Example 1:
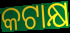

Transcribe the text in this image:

କଟାକ୍ଷ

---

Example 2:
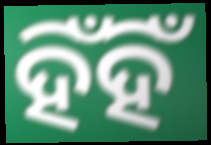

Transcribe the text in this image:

ହିଁହିଁ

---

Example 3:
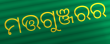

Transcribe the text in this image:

ମତ୍ତଗୁଞ୍ଜରର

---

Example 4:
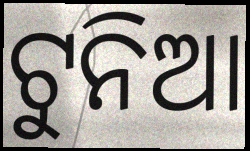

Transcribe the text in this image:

ଟୁନିଆ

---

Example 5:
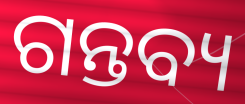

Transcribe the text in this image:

ଗନ୍ତବ୍ୟ